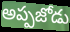
అప్పజోడు